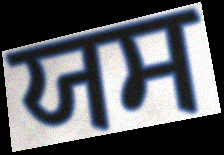
ਯਸ